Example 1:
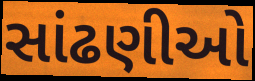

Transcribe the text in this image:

સાંઢણીઓ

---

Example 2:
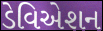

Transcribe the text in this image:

ડેવિએશન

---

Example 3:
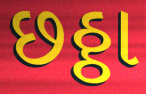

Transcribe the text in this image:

છઠ્ઠા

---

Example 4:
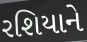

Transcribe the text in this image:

રશિયાને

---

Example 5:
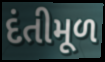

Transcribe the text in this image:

દંતીમૂળ